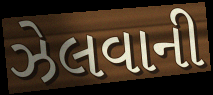
ઝેલવાની